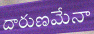
దారుణమేనా